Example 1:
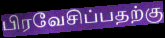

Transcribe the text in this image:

பிரவேசிப்பதற்கு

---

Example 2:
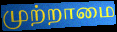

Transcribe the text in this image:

முற்றாமை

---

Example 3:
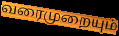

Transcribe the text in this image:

வரைமுறையும்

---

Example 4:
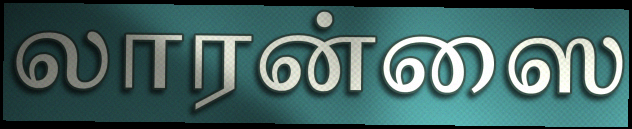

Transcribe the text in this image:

லாரன்ஸை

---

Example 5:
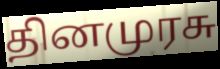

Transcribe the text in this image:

தினமுரசு